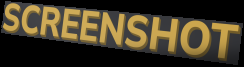
SCREENSHOT